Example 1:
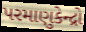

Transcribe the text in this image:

પરમાણુકેન્દ્રો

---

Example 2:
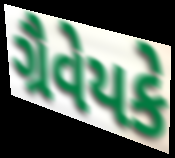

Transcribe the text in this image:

ગ્રૈવેયકે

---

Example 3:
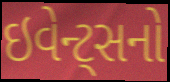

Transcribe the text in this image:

ઇવેન્ટ્સનો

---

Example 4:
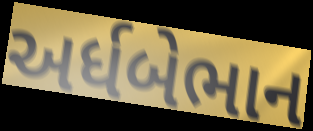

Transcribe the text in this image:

અર્ધબેભાન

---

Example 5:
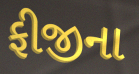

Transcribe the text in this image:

ફીજીના